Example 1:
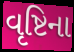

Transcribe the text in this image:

વૃષ્ટિના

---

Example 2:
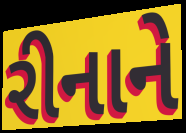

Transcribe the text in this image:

રીનાને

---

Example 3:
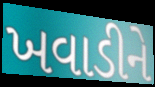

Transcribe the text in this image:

ખવાડીને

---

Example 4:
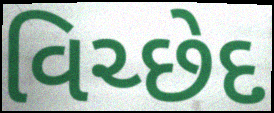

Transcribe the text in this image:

વિચ્છેદ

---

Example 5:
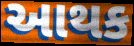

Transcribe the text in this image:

આથક